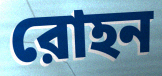
রোহন